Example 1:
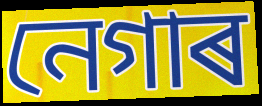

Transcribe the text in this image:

নেগাৰ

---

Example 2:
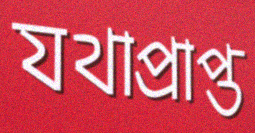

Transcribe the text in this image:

যথাপ্ৰাপ্ত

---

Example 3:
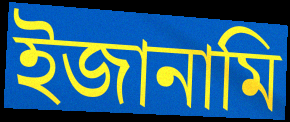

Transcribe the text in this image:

ইজানামি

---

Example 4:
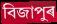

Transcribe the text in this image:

বিজাপুৰ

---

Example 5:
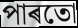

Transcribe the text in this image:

পাৰতো